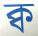
ক্ব